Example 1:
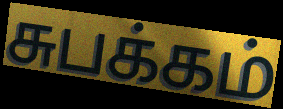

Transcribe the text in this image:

சுபக்கம்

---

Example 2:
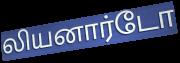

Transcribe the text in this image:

லியனார்டோ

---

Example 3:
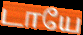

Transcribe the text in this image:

டாயே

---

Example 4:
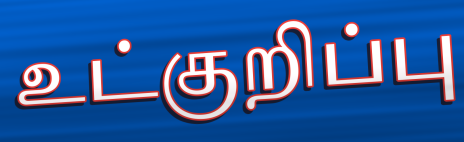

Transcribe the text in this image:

உட்குறிப்பு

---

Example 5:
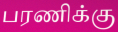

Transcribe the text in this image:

பரணிக்கு